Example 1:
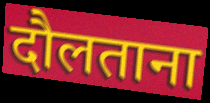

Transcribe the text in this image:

दौलताना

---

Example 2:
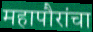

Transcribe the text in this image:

महापौरांचा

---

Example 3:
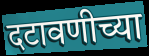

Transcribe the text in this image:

दटावणीच्या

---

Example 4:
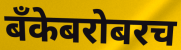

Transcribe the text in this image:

बँकेबरोबरच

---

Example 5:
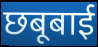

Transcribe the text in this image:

छबूबाई